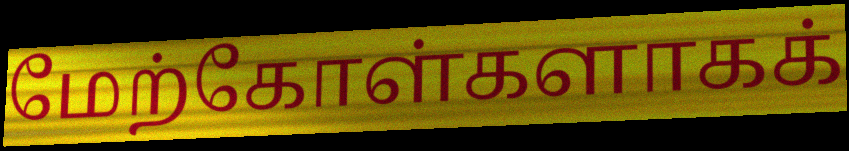
மேற்கோள்களாகக்